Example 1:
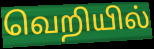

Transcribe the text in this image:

வெறியில்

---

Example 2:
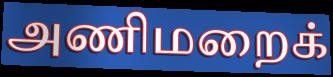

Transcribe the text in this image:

அணிமறைக்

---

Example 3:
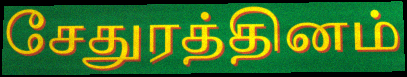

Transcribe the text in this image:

சேதுரத்தினம்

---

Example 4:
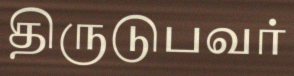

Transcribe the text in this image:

திருடுபவர்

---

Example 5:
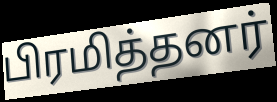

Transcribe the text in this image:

பிரமித்தனர்